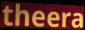
theera